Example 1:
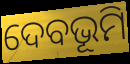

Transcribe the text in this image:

ଦେବଭୂମି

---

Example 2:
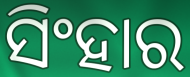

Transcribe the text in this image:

ସିଂହାର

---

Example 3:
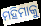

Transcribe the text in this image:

ମହିମାକୁ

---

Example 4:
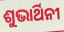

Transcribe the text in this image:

ଶୁଭାର୍ଥିନୀ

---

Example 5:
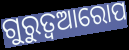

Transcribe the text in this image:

ଗୁରୁତ୍ଵଆରୋପ